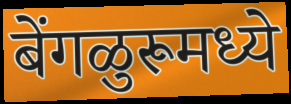
बेंगळुरूमध्ये